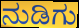
ನುಡಿಗು